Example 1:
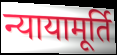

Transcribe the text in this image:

न्यायामूर्ति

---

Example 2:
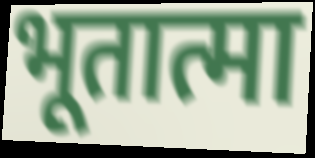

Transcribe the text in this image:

भूतात्मा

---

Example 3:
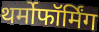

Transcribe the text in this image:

थर्मोफॉर्मिंग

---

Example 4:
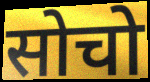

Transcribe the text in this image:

सोचो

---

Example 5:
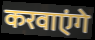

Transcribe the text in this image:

करवाएंगे